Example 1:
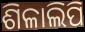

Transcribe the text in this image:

ଶିଳାଲିପି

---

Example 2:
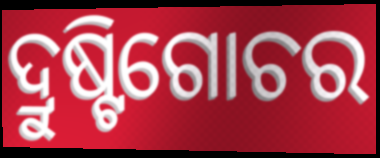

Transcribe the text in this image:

ଦ୍ରୁଷ୍ଟିଗୋଚର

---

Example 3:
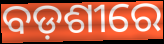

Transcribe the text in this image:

ବଡ଼ଶୀରେ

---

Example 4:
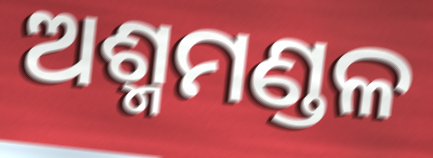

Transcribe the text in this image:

ଅଶ୍ମମଣ୍ଡଳ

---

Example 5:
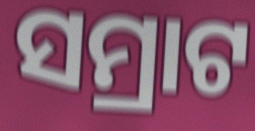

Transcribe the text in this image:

ସମ୍ରାଟ